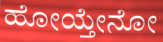
ಹೋಯ್ತೇನೋ